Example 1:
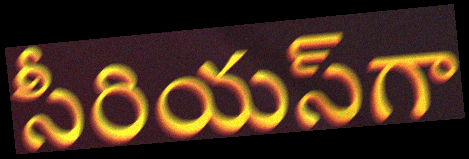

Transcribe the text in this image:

సీరియస్‌గా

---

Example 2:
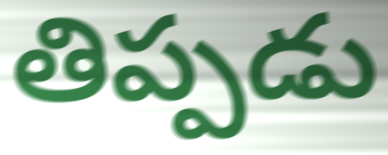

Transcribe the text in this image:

తిప్పడు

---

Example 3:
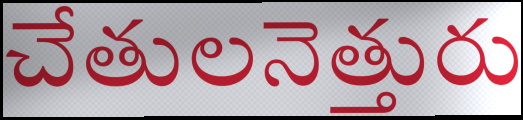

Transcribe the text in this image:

చేతులనెత్తురు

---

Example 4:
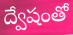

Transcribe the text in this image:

ద్వేషంతో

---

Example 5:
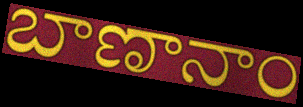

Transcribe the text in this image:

బాణానాం